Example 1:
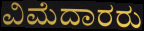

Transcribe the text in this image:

ವಿಮೆದಾರರು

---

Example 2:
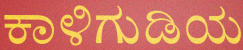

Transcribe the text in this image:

ಕಾಳಿಗುಡಿಯ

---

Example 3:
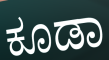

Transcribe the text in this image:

ಕೂಡಾ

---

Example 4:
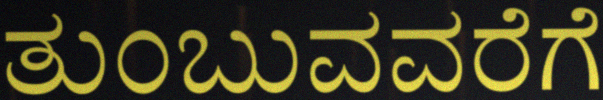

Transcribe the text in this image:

ತುಂಬುವವರೆಗೆ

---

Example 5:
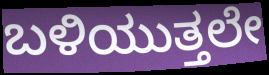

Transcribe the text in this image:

ಬಳಿಯುತ್ತಲೇ